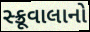
સ્ક્રૂવાલાનો